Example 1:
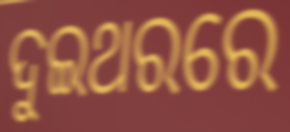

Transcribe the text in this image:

ଦୁଇଥରରେ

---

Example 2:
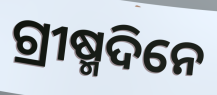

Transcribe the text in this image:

ଗ୍ରୀଷ୍ମଦିନେ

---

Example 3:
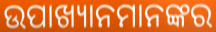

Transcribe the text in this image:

ଉପାଖ୍ୟାନମାନଙ୍କର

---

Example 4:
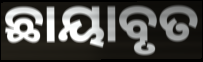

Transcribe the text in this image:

ଛାୟାବୃତ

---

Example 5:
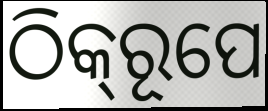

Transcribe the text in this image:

ଠିକ୍‌ରୂପେ